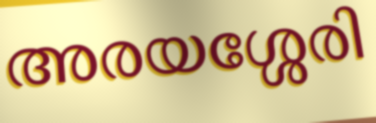
അരയശ്ശേരി